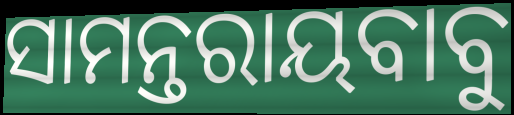
ସାମନ୍ତରାୟବାବୁ